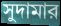
সুদামার